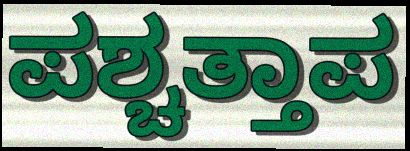
ಪಶ್ಚತ್ತಾಪ